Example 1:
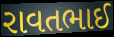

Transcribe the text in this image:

રાવતભાઈ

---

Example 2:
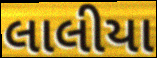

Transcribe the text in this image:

લાલીયા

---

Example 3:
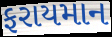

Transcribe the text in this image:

ફરાયમાન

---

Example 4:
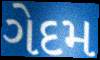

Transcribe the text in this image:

ગેદમ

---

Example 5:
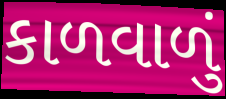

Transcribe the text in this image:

કાળવાળું